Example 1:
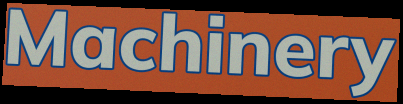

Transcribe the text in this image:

Machinery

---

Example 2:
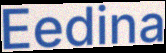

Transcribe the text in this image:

Eedina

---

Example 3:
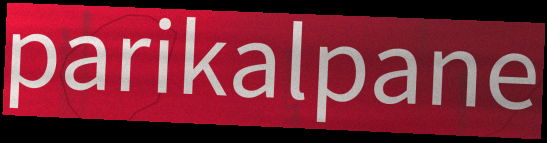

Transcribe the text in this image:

parikalpane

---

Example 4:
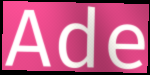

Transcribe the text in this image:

Ade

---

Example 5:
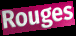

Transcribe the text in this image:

Rouges